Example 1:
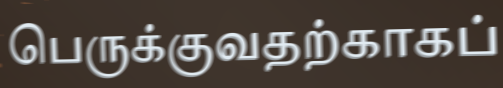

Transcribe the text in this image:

பெருக்குவதற்காகப்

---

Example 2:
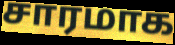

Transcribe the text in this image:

சாரமாக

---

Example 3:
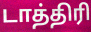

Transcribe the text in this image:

டாத்திரி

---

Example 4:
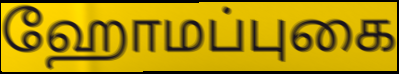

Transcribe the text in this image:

ஹோமப்புகை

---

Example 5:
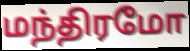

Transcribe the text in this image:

மந்திரமோ